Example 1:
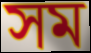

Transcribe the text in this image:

সম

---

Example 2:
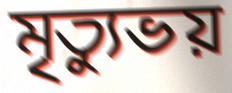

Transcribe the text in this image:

মৃত্যুভয়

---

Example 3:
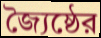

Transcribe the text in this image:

জ্যৈষ্ঠের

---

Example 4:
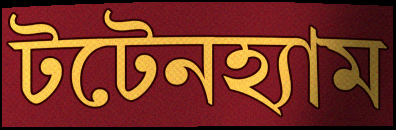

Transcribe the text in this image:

টটেনহ্যাম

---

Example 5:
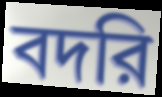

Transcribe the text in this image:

বদরি